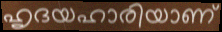
ഹൃദയഹാരിയാണ്